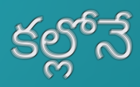
కల్లోనే